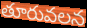
తూరువలన